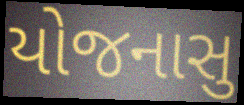
યોજનાસુ